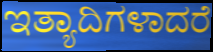
ಇತ್ಯಾದಿಗಳಾದರೆ